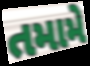
તમામે